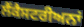
ਲੈਂਕੈਸਟਰੀਅਨਾਂ